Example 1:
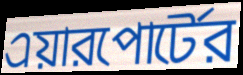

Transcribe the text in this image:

এয়ারপোর্টের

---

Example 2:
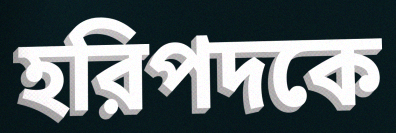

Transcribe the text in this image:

হরিপদকে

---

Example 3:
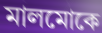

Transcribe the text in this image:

মালমোকে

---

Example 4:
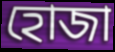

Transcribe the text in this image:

হোজা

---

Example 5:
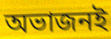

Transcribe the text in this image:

অভাজনই